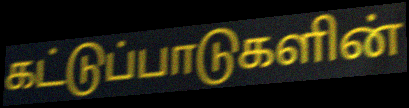
கட்டுப்பாடுகளின்